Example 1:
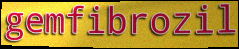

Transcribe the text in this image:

gemfibrozil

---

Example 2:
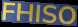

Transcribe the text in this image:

FHISO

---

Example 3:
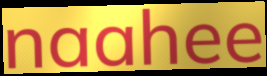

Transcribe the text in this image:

naahee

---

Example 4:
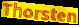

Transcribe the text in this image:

Thorsten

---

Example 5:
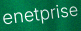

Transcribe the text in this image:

enetprise